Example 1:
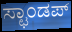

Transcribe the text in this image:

ಸ್ಟಾಂಡಪ್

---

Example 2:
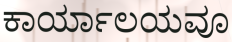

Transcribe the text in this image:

ಕಾರ್ಯಾಲಯವೂ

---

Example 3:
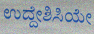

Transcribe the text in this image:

ಉದ್ದೇಶಿಸಿಯೇ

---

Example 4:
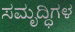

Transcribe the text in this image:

ಸಮೃದ್ಧಿಗಳ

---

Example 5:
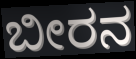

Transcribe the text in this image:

ಬೀರನ